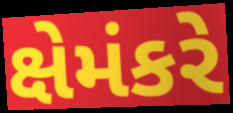
ક્ષેમંકરે